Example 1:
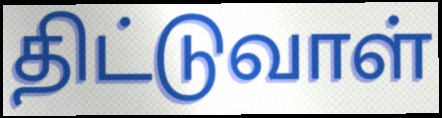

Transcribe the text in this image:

திட்டுவாள்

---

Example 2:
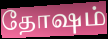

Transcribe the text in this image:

தோஷம்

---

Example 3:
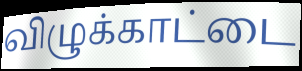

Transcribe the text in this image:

விழுக்காட்டை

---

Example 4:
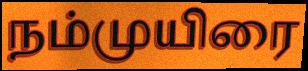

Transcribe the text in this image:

நம்முயிரை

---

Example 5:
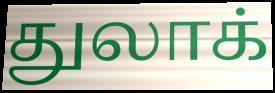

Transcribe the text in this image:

துலாக்